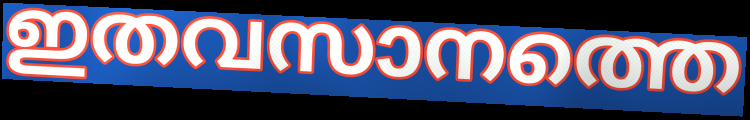
ഇതവസാനത്തെ